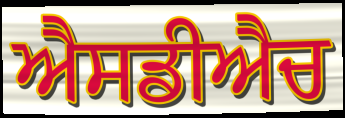
ਐਸਡੀਐਚ